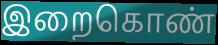
இறைகொண்